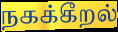
நகக்கீறல்